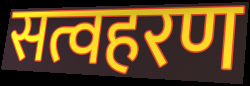
सत्वहरण